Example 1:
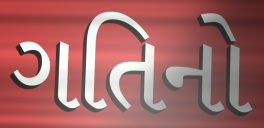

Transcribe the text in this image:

ગતિનો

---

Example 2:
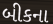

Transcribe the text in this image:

બીકના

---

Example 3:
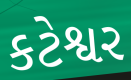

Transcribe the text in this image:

કટેશ્વર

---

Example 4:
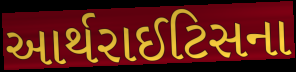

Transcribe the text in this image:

આર્થરાઈટિસના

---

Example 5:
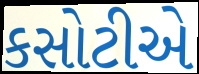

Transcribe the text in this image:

કસોટીએ